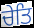
ਚੇਤਿ